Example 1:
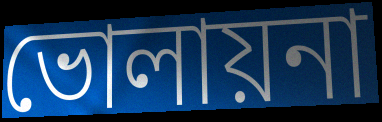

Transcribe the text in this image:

ভোলায়না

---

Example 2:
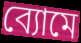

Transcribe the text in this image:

ব্যোমে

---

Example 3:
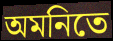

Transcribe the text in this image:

অমনিতে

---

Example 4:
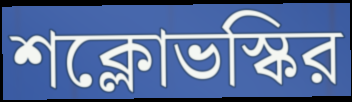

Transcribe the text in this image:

শক্লোভস্কির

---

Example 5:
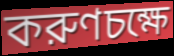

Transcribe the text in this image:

করুণচক্ষে